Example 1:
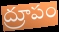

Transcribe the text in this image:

ద్రూపం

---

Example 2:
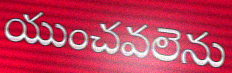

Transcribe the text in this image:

యుంచవలెను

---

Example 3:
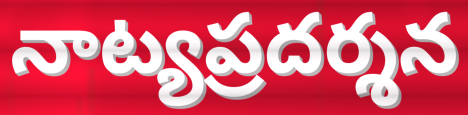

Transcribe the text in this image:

నాట్యప్రదర్శన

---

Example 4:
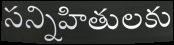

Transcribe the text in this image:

సన్నిహితులకు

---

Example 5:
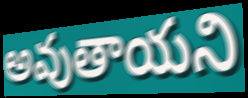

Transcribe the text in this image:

అవుతాయని